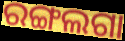
ରଙ୍ଗଲଗା